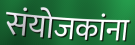
संयोजकांना